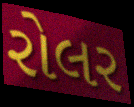
રોલર